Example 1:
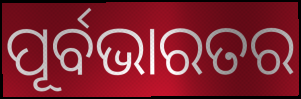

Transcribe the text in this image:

ପୂର୍ବଭାରତର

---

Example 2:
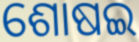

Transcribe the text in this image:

ଶୋଷଇ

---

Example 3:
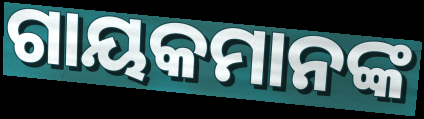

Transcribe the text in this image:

ଗାୟକମାନଙ୍କ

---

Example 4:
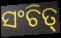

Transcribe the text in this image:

ସଂଚିତ୍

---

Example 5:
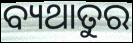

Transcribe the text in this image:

ବ୍ୟଥାତୁର